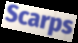
Scarps